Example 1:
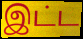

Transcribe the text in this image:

இட்ட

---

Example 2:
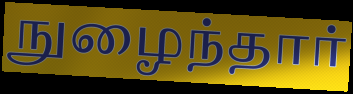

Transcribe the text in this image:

நுழைந்தார்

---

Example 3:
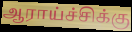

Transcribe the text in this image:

ஆராய்ச்சிக்கு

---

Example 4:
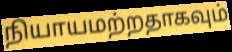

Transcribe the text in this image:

நியாயமற்றதாகவும்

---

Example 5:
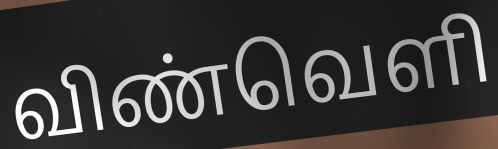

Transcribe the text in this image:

விண்வெளி